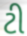
ટી